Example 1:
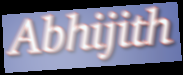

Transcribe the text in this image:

Abhijith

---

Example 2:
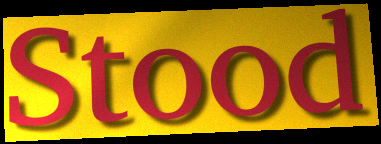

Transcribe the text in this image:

Stood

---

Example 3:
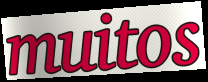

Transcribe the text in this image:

muitos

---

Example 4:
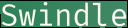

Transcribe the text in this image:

Swindle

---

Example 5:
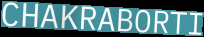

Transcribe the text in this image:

CHAKRABORTI